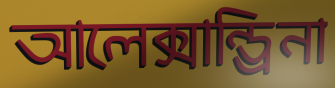
আলেক্সান্ড্রিনা